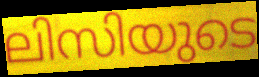
ലിസിയുടെ